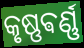
କୃଷ୍ଣଵର୍ଣ୍ଣ